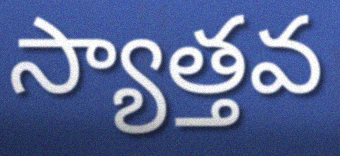
స్యాత్తవ